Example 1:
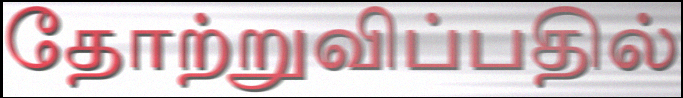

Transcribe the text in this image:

தோற்றுவிப்பதில்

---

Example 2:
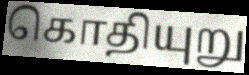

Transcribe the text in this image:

கொதியுறு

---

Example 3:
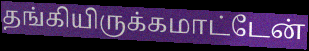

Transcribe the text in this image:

தங்கியிருக்கமாட்டேன்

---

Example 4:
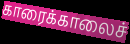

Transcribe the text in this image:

காரைக்காலைச்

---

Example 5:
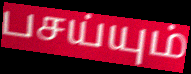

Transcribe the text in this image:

பசய்யும்